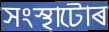
সংস্থাটোৰ